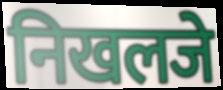
निखलजे